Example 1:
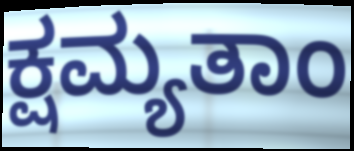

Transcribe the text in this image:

ಕ್ಷಮ್ಯತಾಂ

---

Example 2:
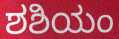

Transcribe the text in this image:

ಶಶಿಯಂ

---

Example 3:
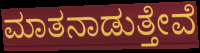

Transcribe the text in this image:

ಮಾತನಾಡುತ್ತೇವೆ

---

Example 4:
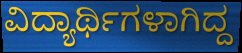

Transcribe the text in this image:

ವಿದ್ಯಾರ್ಥಿಗಳಾಗಿದ್ದ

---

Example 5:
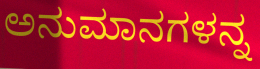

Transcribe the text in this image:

ಅನುಮಾನಗಳನ್ನ